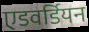
एडवर्डियन